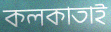
কলকাতাই